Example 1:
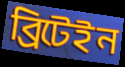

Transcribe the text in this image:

ব্ৰিটেইন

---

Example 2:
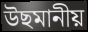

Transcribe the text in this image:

উছমানীয়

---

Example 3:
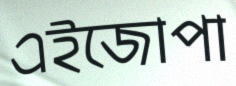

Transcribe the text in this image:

এইজোপা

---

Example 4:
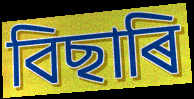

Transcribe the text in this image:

বিছাৰি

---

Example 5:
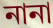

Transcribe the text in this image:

নানা